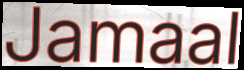
Jamaal